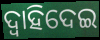
ଦ୍ବାହିଦେଇ